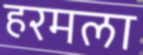
हरमला